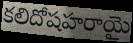
కలిదోషహరాయై